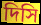
দিসি